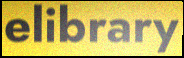
elibrary